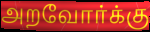
அறவோர்க்கு